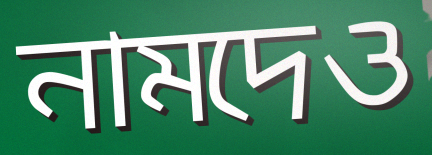
নামদেও